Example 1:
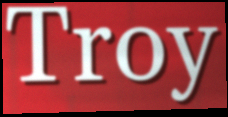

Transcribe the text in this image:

Troy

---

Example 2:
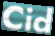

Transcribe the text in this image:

Cid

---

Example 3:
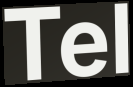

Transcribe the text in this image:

Tel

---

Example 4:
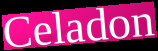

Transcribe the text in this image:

Celadon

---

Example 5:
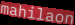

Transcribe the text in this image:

mahilaon